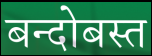
बन्दोबस्त